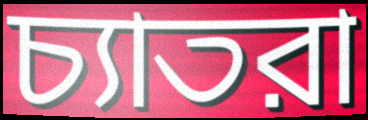
চ্যাতরা